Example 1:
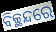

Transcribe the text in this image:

ବିଚ୍ଛନ୍ଦରେ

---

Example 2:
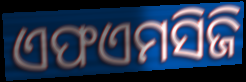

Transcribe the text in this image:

ଏଫଏମସିଜି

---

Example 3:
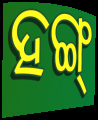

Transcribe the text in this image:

ହଙ୍ଗ୍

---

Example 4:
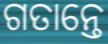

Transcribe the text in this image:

ଗତାନ୍ତେ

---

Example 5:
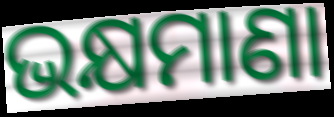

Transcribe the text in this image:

ଭକ୍ଷମାଣା